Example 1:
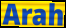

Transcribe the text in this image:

Arah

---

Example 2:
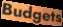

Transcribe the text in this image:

Budgets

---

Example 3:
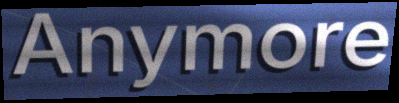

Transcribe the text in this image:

Anymore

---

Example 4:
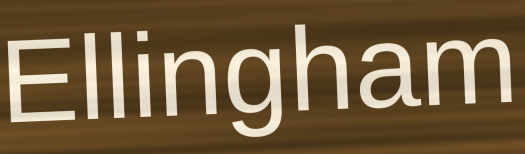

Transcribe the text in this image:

Ellingham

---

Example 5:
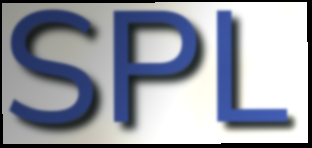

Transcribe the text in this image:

SPL